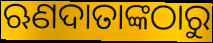
ଋଣଦାତାଙ୍କଠାରୁ